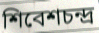
শিবেশচন্দ্র